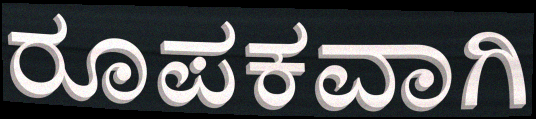
ರೂಪಕವಾಗಿ